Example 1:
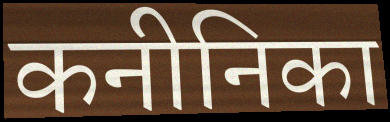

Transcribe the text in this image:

कनीनिका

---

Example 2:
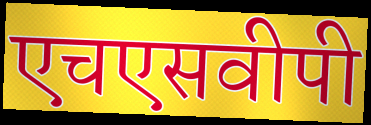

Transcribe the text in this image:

एचएसवीपी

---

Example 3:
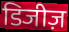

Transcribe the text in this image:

डिजीज़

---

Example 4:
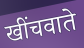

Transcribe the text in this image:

खींचवाते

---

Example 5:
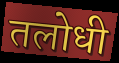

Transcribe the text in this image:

तलोधी